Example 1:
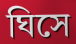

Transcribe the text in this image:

ঘিসে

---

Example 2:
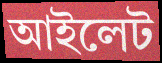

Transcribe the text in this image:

আইলেট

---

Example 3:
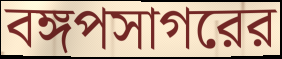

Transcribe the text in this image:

বঙ্গপসাগরের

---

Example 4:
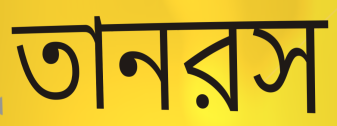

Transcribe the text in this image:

তানরস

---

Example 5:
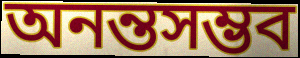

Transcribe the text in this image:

অনন্তসম্ভব